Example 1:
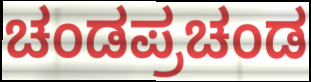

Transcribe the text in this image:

ಚಂಡಪ್ರಚಂಡ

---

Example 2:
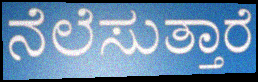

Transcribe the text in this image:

ನೆಲೆಸುತ್ತಾರೆ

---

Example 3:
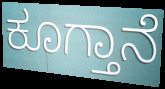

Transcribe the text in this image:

ಕೂಗ್ತಾನೆ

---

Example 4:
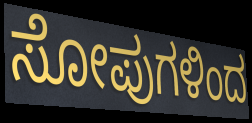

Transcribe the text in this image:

ಸೋಪುಗಳಿಂದ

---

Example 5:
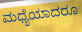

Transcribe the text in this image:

ಮಧ್ಯೆಯಾದರೂ